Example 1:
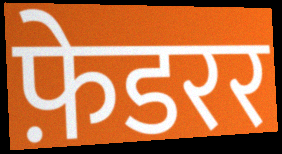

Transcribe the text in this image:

फ़ेडरर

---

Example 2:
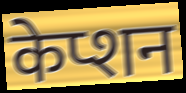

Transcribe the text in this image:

केप्शन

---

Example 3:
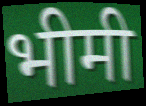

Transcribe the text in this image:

भीमी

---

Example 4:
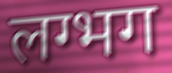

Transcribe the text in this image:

लग्भग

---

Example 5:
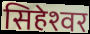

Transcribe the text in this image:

सिहेश्वर